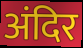
अंदिर